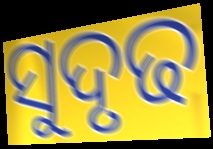
ସୁଦୃଢ